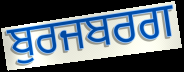
ਬੁਰਜਬਰਗ